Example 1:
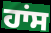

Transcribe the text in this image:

ਹਾਂਸ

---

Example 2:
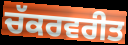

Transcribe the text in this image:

ਚੱਕਰਵਰੀਤ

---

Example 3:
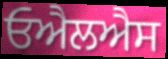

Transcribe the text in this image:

ਓਐਲਐਸ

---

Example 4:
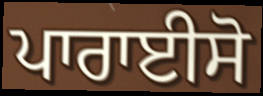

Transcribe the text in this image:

ਪਾਰਾਈਸੋ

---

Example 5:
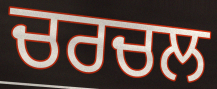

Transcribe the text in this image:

ਚਰਚਲ